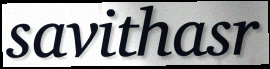
savithasr